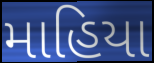
માહિયા